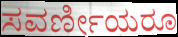
ಸವರ್ಣೀಯರೂ